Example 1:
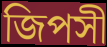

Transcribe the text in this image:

জিপসী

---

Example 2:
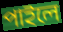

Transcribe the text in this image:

পাইলে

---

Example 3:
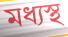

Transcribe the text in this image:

মধ্যস্থ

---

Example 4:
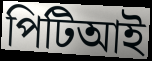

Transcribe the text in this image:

পিটিআই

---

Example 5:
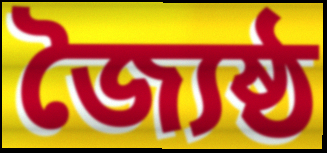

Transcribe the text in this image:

জ্যৈষ্ঠ